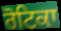
ਰੋਟਿਕਾ